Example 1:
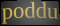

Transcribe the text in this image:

poddu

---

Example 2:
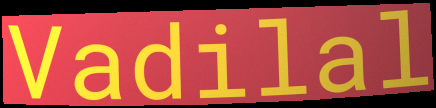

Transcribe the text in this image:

Vadilal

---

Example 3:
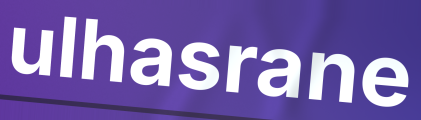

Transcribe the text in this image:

ulhasrane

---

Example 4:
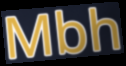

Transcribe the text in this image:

Mbh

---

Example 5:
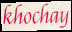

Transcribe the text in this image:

khochay